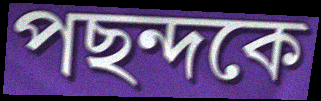
পছন্দকে